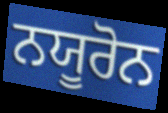
ਨਯੂਰੋਨ